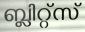
ബ്ലിറ്റ്സ്